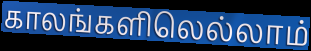
காலங்களிலெல்லாம்